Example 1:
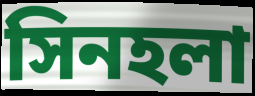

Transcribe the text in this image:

সিনহলা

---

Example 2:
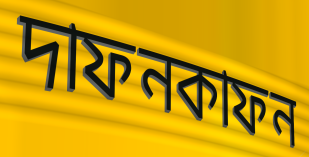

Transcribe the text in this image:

দাফনকাফন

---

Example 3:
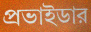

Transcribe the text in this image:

প্রভাইডার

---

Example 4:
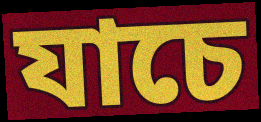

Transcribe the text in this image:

যাচে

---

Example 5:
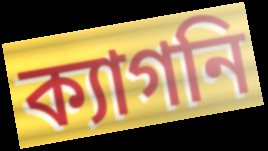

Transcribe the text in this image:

ক্যাগনি